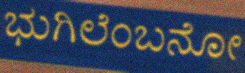
ಭುಗಿಲೆಂಬನೋ